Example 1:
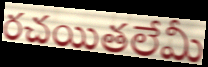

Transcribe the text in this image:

రచయితలేమీ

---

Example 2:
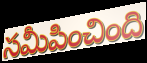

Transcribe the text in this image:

సమీపించింది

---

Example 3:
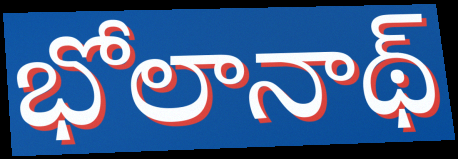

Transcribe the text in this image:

భోలానాథ్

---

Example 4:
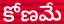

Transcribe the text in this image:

కోణమే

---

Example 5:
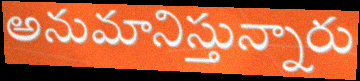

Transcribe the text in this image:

అనుమానిస్తున్నారు